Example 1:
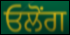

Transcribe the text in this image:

ਓਲੋਂਗ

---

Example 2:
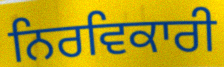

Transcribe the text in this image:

ਨਿਰਵਿਕਾਰੀ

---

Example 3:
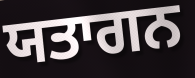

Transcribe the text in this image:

ਯਤਾਗਨ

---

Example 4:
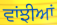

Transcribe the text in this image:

ਵਾਂਝੀਆਂ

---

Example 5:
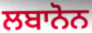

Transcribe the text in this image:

ਲਬਾਨੋਨ